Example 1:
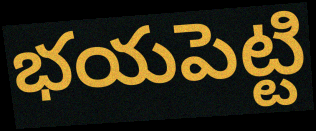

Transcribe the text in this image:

భయపెట్టి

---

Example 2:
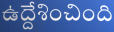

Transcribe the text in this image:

ఉద్దేశించింది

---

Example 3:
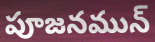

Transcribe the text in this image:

పూజనమున్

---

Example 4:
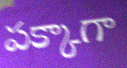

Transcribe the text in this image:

పక్కాగా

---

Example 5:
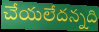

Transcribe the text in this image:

చేయలేదన్నది